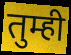
तुम्ही